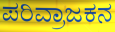
ಪರಿವ್ರಾಜಕನ